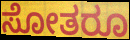
ಸೋತರೂ